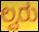
ಲ್ವರು